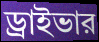
ড্রাইভার